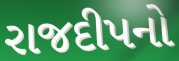
રાજદીપનો